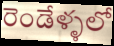
రెండేళ్ళలో